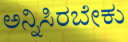
ಅನ್ನಿಸಿರಬೇಕು